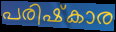
പരിഷ്‌കാര